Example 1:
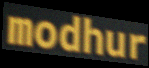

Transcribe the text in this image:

modhur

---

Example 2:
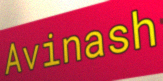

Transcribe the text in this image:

Avinash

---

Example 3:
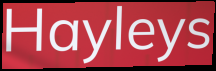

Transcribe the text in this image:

Hayleys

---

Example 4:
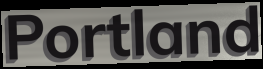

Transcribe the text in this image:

Portland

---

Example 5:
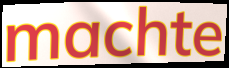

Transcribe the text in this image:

machte